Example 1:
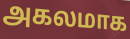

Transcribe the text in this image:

அகலமாக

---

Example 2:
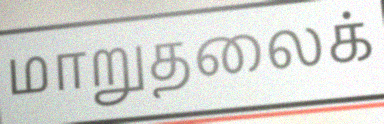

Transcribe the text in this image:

மாறுதலைக்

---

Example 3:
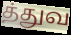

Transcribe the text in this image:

த்துவ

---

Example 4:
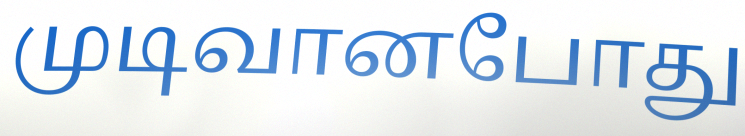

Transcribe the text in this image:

முடிவானபோது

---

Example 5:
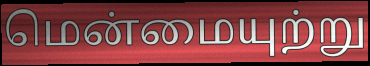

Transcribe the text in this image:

மென்மையுற்று